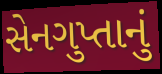
સેનગુપ્‍તાનું